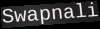
Swapnali